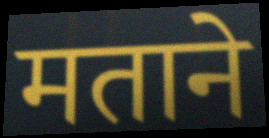
मताने